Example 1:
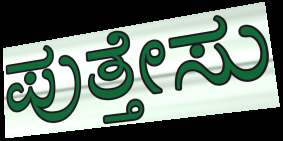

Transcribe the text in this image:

ಪುತ್ತೇಸು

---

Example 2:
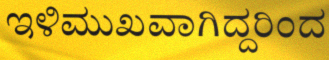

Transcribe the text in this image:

ಇಳಿಮುಖವಾಗಿದ್ದರಿಂದ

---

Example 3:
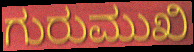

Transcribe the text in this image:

ಗುರುಮುಖಿ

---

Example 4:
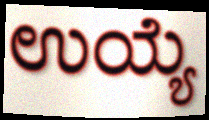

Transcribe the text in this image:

ಉಯ್ಯೆ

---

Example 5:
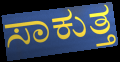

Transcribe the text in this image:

ಸಾಕುತ್ತ